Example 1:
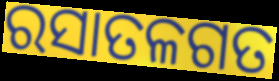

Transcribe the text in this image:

ରସାତଳଗତ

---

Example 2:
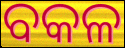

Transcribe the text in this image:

ବକଳ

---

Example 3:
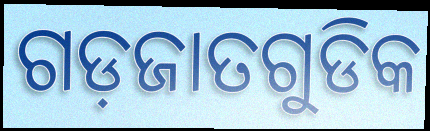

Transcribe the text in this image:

ଗଡ଼ଜାତଗୁଡିକ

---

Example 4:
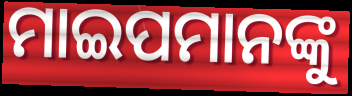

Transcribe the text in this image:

ମାଇପମାନଙ୍କୁ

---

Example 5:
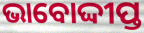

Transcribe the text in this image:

ଭାବୋଦ୍ଦୀପ୍ତ